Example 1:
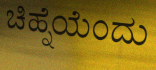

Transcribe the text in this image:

ಚಿಹ್ನೆಯೆಂದು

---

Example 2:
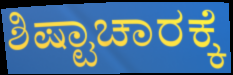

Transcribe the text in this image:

ಶಿಷ್ಟಾಚಾರಕ್ಕೆ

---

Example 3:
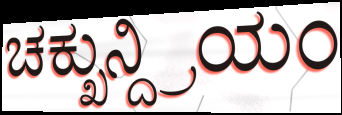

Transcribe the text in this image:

ಚಕ್ಖುನ್ದ್ರಿಯಂ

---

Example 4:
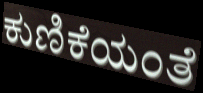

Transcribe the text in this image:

ಕುಣಿಕೆಯಂತೆ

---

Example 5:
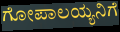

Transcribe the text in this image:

ಗೋಪಾಲಯ್ಯನಿಗೆ